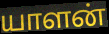
யாளன்